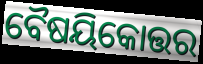
ବୈଷୟିକୋତ୍ତର